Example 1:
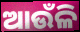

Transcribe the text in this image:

ଆଉଁଳି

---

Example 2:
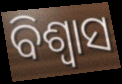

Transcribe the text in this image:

ବିଶ୍ଵାସ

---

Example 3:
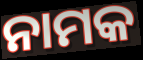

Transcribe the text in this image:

ନାମକ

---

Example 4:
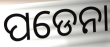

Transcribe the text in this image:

ପଡେନା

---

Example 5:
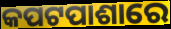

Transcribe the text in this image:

କପଟପାଶାରେ